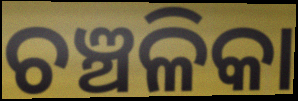
ଚଞ୍ଚଳିକା